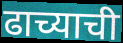
ढाच्याची